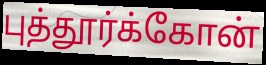
புத்தூர்க்கோன்